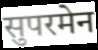
सुपरमेन